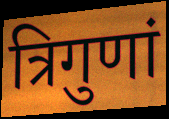
त्रिगुणां